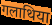
गलाथिया